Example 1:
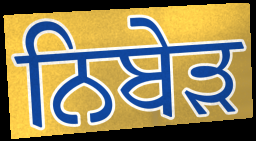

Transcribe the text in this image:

ਨਿਬੇੜ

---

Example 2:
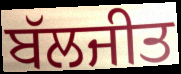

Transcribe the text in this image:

ਬੱਲਜੀਤ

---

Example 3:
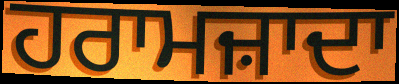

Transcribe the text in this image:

ਹਰਾਮਜ਼ਾਦਾ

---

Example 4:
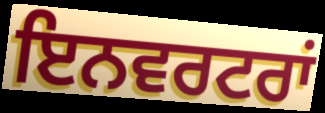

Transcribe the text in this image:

ਇਨਵਰਟਰਾਂ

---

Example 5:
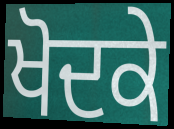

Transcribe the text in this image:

ਖੋਦਕੇ